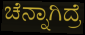
ಚೆನ್ನಾಗಿದ್ರೆ